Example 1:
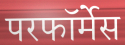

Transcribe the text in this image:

परफॉर्मेस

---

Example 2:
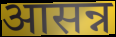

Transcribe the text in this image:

आसन्न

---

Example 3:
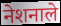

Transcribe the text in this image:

नेशनाले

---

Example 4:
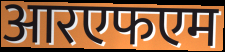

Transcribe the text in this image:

आरएफएम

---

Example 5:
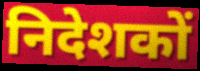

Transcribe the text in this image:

निदेशकों